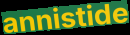
annistide